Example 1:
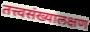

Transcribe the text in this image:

तत्त्वसंख्यालक्षण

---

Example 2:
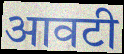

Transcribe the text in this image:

आवटी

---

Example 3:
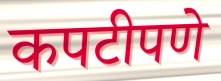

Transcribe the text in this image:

कपटीपणे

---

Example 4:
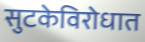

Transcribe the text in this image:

सुटकेविरोधात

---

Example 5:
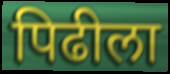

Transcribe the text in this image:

पिढीला